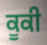
ਕੂਕੀ